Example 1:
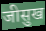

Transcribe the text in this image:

जीसुख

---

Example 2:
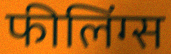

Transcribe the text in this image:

फीलिंग्स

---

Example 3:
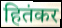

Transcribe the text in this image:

हितंकर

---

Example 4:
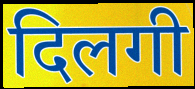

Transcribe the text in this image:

दिलगी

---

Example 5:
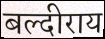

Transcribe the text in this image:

बल्दीराय